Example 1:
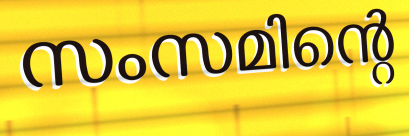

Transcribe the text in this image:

സംസമിന്റെ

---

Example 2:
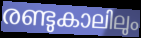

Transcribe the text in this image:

രണ്ടുകാലിലും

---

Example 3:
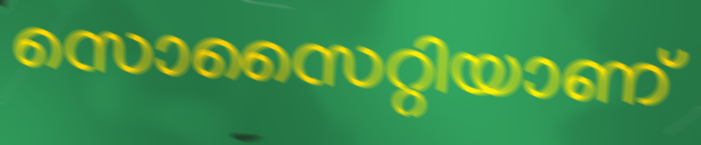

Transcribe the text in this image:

സൊസൈറ്റിയാണ്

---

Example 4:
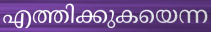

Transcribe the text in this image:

എത്തിക്കുകയെന്ന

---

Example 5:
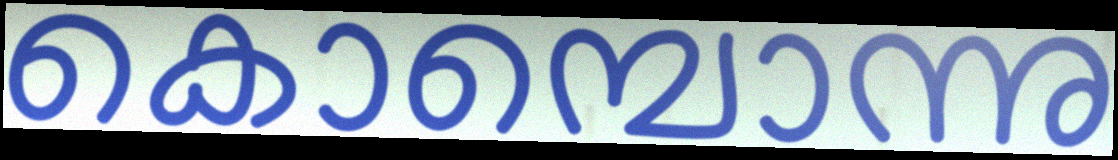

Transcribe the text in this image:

കൊമ്പൊന്നു